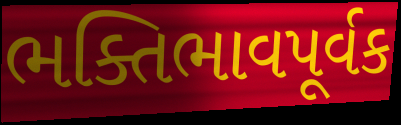
ભક્તિભાવપૂર્વક